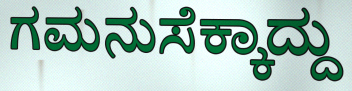
ಗಮನುಸೆಕ್ಕಾದ್ದು